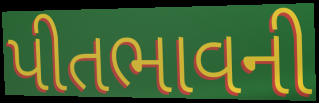
પીતભાવની